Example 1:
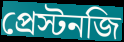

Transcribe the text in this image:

প্রেস্টনজি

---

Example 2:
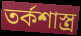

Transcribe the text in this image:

তর্কশাস্ত্র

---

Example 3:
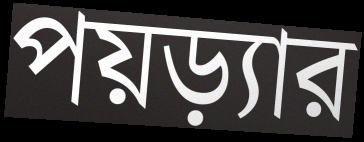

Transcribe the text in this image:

পয়ড়্যার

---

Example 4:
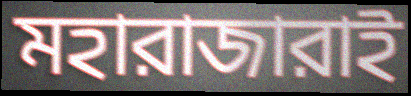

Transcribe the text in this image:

মহারাজারাই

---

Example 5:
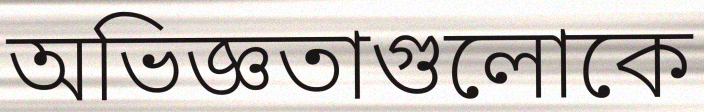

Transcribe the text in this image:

অভিজ্ঞতাগুলোকে